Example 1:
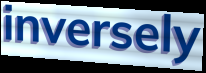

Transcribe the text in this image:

inversely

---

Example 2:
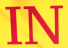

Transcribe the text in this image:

IN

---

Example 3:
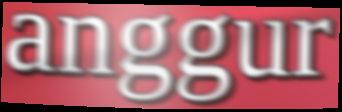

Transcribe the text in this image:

anggur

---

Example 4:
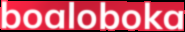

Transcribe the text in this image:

boaloboka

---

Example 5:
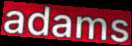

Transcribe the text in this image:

adams